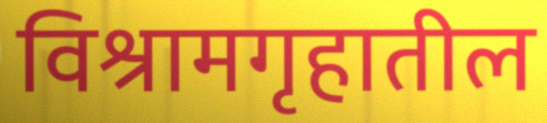
विश्रामगृहातील